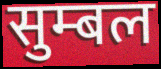
सुम्बल